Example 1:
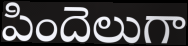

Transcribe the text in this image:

పిందెలుగా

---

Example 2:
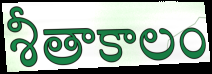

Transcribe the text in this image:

శీతాకాలం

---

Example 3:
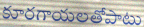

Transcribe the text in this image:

కూరగాయలతోపాటు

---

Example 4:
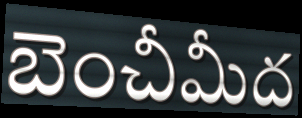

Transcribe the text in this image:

బెంచీమీద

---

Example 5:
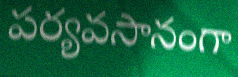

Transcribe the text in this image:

పర్యవసానంగా